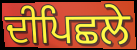
ਦੀਪਿਛਲੇ